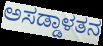
ಅಸಡ್ಡಾಳತನ